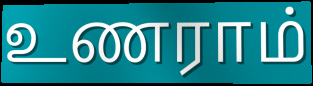
உணராம்